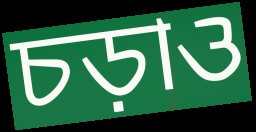
চড়াও